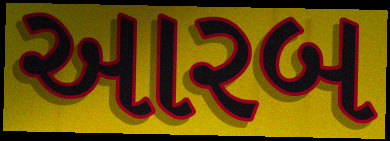
આરબ